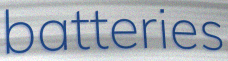
batteries